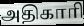
அதிகாரி